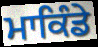
ਮਾਕਿੰਡੇ